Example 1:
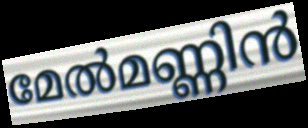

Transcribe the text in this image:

മേൽമണ്ണിൻ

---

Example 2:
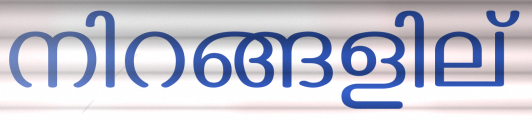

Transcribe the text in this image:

നിറങ്ങളില്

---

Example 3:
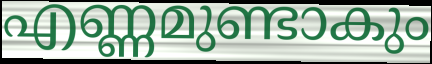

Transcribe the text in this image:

എണ്ണമുണ്ടാകും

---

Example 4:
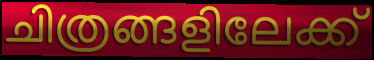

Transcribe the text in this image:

ചിത്രങ്ങളിലേക്ക്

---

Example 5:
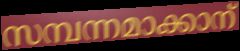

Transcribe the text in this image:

സമ്പന്നമാക്കാന്